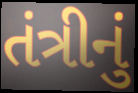
તંત્રીનું